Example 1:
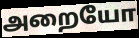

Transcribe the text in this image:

அறையோ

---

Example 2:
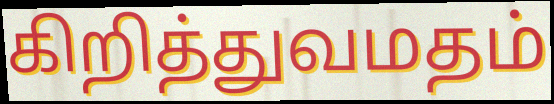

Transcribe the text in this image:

கிறித்துவமதம்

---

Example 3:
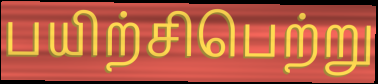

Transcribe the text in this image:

பயிற்சிபெற்று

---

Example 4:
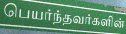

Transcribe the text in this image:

பெயர்ந்தவர்களின்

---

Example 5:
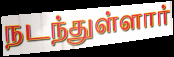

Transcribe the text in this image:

நடந்துள்ளார்